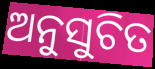
ଅନୁସୁଚିତ